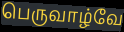
பெருவாழ்வே